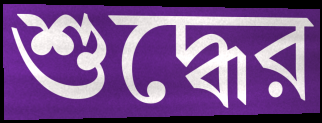
শুদ্ধের